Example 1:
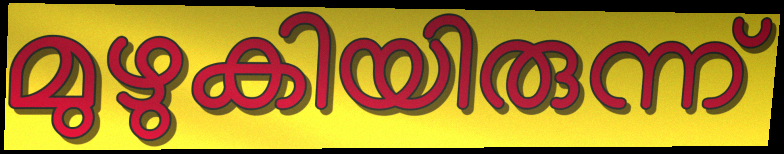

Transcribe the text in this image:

മുഴുകിയിരുന്ന്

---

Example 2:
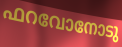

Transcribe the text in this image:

ഫറവോനോടു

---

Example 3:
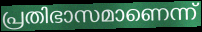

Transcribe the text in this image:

പ്രതിഭാസമാണെന്ന്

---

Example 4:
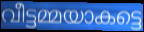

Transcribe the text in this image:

വീട്ടമ്മയാകട്ടെ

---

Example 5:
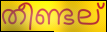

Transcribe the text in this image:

തീണ്ടല്